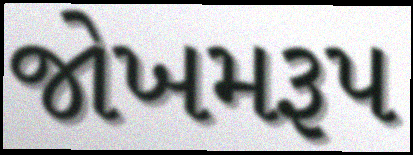
જોખમરૂપ